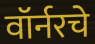
वॉर्नरचे